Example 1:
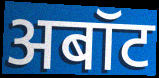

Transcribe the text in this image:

अबॉट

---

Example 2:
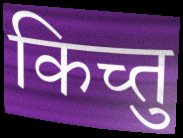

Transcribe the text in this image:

किच्तु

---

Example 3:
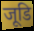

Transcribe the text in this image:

जूडि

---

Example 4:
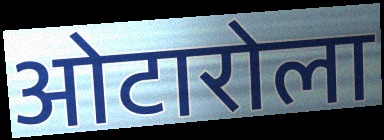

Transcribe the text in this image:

ओटारोला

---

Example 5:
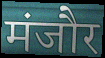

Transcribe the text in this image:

मंजौर